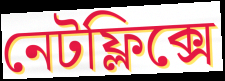
নেটফ্লিক্সে